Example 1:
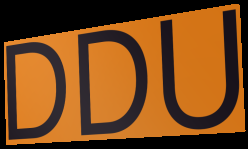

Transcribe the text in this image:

DDU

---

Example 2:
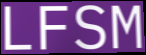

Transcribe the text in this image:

LFSM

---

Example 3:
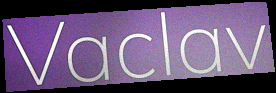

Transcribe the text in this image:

Vaclav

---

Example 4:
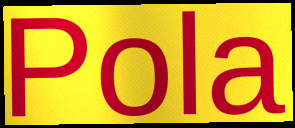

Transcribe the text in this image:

Pola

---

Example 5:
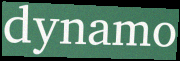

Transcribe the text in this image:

dynamo